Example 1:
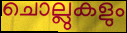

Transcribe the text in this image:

ചൊല്ലുകളും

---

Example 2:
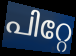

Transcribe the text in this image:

പിറ്റേ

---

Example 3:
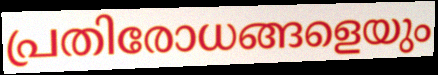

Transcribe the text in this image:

പ്രതിരോധങ്ങളെയും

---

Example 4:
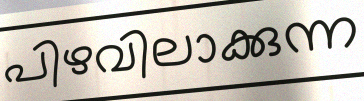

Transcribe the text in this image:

പിഴവിലാക്കുന്ന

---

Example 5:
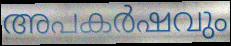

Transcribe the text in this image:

അപകർഷവും